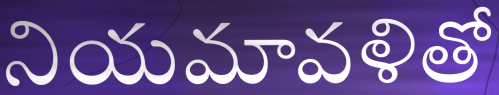
నియమావళితో